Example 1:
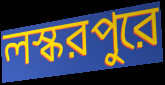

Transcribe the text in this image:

লস্করপুরে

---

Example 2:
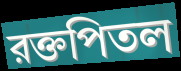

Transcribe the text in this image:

রক্তপিতল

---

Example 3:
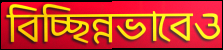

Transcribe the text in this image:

বিচ্ছিন্নভাবেও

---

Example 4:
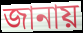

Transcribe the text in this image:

জানায়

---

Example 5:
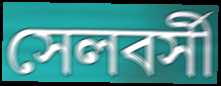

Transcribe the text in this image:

সেলবর্সী